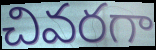
చివరగా